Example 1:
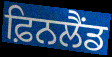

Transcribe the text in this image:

ਫ਼ਿਨਲੈਂਡ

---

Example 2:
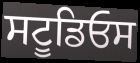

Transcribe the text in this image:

ਸਟੂਡਿਓਸ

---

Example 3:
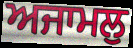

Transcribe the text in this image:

ਅਜਾਮਲੁ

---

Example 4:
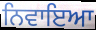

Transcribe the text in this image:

ਨਿਵਾਇਆ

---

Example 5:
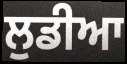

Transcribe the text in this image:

ਲੁਡੀਆ